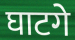
घाटगे